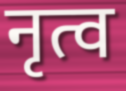
नृत्व